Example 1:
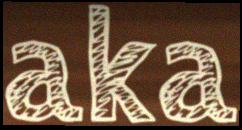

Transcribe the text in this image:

aka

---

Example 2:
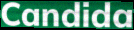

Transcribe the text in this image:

Candida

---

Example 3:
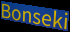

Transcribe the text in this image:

Bonseki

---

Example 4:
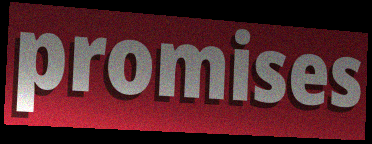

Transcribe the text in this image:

promises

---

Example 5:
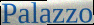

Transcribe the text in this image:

Palazzo